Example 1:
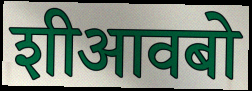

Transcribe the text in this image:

शीआवबो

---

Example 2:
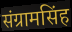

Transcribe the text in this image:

संग्रामसिंह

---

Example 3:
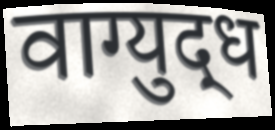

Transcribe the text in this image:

वाग्युद्ध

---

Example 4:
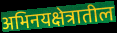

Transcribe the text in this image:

अभिनयक्षेत्रातील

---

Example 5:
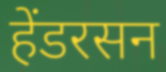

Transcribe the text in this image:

हेंडरसन